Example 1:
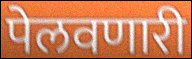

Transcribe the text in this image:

पेलवणारी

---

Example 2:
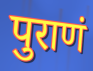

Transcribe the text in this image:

पुराणं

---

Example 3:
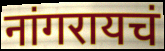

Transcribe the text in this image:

नांगरायचं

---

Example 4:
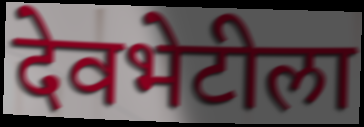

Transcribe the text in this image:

देवभेटीला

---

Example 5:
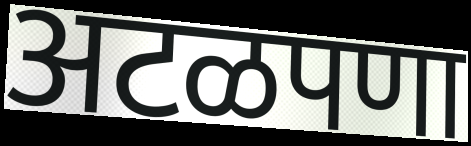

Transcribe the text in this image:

अटळपणा